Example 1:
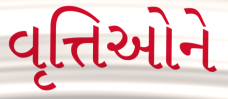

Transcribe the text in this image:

વૃત્તિઓને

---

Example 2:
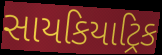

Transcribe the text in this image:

સાયકિયાટ્રિક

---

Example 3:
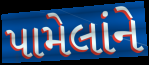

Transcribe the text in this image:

પામેલાંને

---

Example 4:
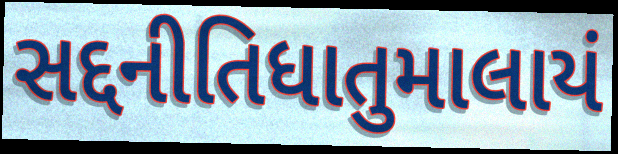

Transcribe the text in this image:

સદ્દનીતિધાતુમાલાયં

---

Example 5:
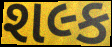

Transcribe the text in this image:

શલ્ક